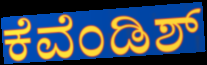
ಕೆವೆಂಡಿಶ್